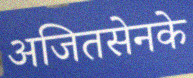
अजितसेनके